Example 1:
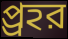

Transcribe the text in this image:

প্র্রহর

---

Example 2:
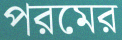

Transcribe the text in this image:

পরমের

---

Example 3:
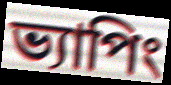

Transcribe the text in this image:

ভ্যাপিং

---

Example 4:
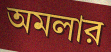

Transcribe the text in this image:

অমলার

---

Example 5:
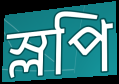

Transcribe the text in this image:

স্লপি